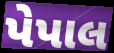
પેપાલ